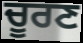
ਚੂਰਣ